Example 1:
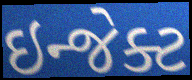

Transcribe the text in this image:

ઇન્જેક્ટ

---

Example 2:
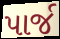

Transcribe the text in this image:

પાર્જ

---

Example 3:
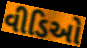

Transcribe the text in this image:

વીડિઓ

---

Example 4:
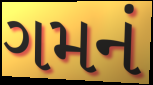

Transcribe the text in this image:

ગમનં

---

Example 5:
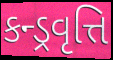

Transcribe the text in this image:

કન્ડ્રવૃત્તિ